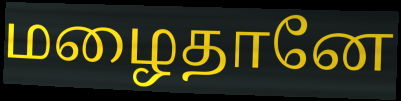
மழைதானே